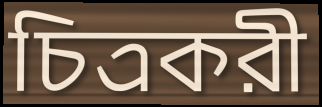
চিত্রকরী